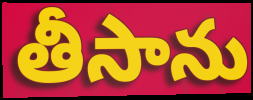
తీసాను